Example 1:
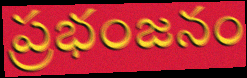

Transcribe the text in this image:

ప్రభంజనం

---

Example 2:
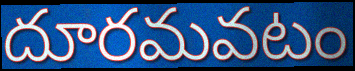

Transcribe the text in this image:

దూరమవటం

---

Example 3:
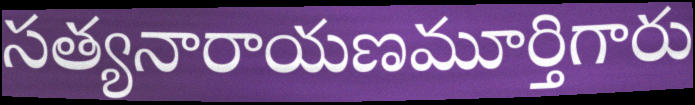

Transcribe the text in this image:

సత్యనారాయణమూర్తిగారు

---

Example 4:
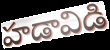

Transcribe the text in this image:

హడావిడి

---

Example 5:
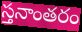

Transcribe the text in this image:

స్తనాంతరం